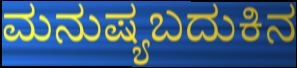
ಮನುಷ್ಯಬದುಕಿನ